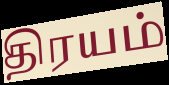
திரயம்